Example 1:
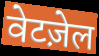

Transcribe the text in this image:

वेटज़ेल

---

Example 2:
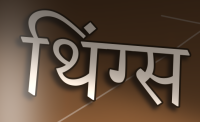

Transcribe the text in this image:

थिंग्स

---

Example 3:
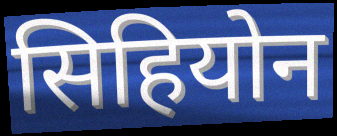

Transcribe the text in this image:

सिहियोन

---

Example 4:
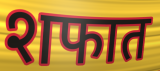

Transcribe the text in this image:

शफात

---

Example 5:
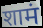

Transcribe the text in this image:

शामं